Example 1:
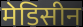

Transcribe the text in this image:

मेडिसीन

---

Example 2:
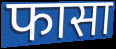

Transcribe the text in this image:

फासा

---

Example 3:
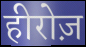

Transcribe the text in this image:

हीरोज़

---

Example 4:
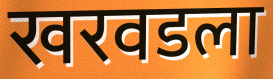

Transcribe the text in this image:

खरवडला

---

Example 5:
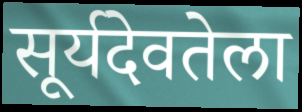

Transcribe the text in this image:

सूर्यदेवतेला